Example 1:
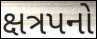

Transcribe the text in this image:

ક્ષત્રપનો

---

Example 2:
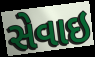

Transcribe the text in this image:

સેવાઇ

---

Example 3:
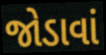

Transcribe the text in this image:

જોડાવાં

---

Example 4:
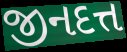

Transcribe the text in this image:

જીનદત્ત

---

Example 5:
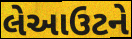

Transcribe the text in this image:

લેઆઉટને